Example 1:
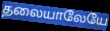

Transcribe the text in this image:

தலையாலேயே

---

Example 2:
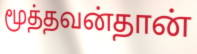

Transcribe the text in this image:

மூத்தவன்தான்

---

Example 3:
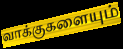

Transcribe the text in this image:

வாக்குகளையும்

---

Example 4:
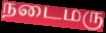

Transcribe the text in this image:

நடைமரு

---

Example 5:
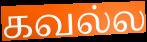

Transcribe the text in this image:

கவல்ல